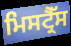
ਮਿਸਟ੍ਰੈੱਸ